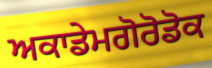
ਅਕਾਡੇਮਗੋਰੋਡੋਕ